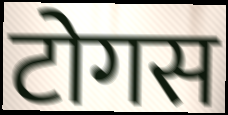
टोगस